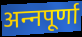
अन्नपूर्णा